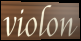
violon